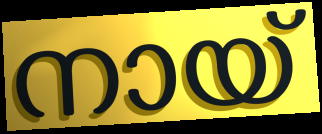
നായ്